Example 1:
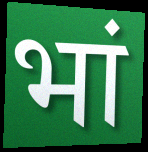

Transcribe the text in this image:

भां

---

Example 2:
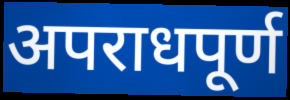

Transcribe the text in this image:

अपराधपूर्ण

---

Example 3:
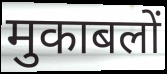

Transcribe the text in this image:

मुकाबलों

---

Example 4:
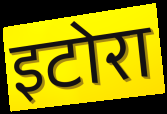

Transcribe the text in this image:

इटोरा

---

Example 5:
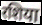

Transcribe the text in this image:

रशिया